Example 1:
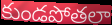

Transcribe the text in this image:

కుండపోతలా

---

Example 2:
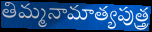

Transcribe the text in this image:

తిమ్మనామాత్యపుత్త్ర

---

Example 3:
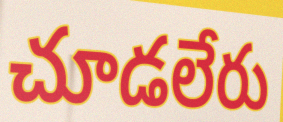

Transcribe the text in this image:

చూడలేరు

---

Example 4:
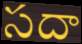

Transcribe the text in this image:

సదా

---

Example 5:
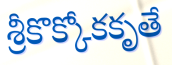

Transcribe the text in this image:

శ్రీకొక్కోకకృతే